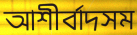
আশীর্বাদসম